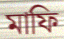
মাফি